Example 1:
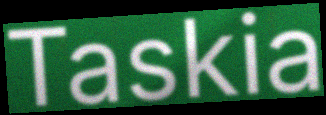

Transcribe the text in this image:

Taskia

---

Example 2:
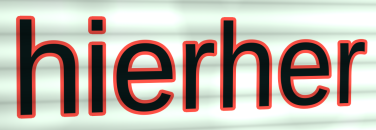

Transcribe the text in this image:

hierher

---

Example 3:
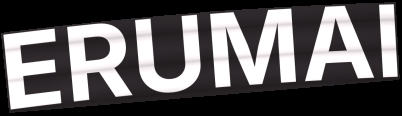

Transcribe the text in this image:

ERUMAI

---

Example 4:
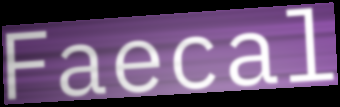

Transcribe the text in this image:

Faecal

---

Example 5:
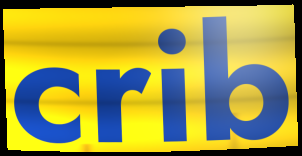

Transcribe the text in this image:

crib